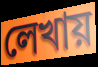
লেখায়